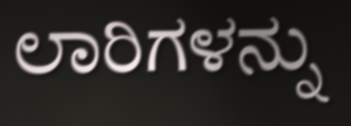
ಲಾರಿಗಳನ್ನು